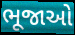
ભૂજાઓ